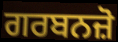
ਗਰਬਨਜ਼ੋ